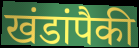
खंडांपैकी